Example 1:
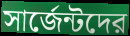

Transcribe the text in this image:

সার্জেন্টদের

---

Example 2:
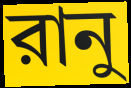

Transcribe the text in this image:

রানু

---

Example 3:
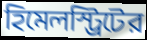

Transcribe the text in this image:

হিমেলস্ট্রিটের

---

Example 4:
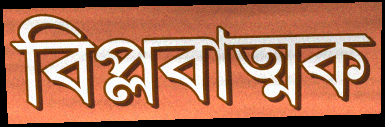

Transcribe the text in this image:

বিপ্লবাত্মক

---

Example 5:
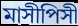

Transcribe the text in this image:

মাসীপিসী